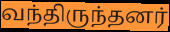
வந்திருந்தனர்